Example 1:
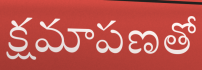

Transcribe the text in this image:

క్షమాపణతో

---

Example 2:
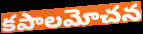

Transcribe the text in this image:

కపాలమోచన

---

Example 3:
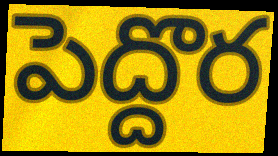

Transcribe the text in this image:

పెద్దొర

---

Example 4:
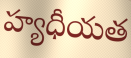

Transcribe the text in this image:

హ్యధీయత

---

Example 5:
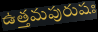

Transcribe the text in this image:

ఉత్తమపురుషః